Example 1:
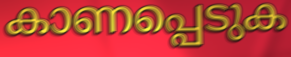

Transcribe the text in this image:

കാണപ്പെടുക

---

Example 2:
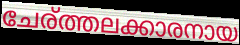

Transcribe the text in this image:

ചേര്ത്തലക്കാരനായ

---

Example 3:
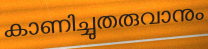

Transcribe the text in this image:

കാണിച്ചുതരുവാനും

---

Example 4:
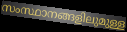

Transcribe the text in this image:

സംസ്ഥാനങ്ങളിലുമുള്ള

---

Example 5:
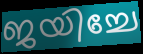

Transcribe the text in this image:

ജയിച്ചേ